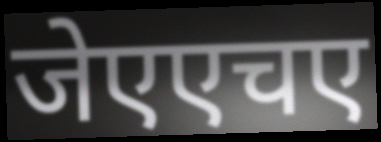
जेएएचए